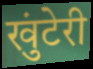
खुंटेरी